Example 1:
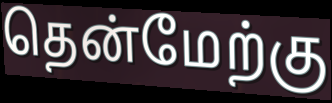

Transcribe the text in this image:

தென்மேற்கு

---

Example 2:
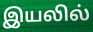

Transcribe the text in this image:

இயலில்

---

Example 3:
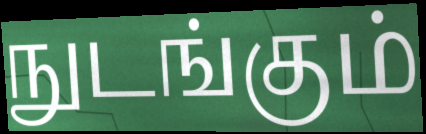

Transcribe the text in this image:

நுடங்கும்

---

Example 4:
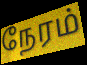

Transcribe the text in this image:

நேரம்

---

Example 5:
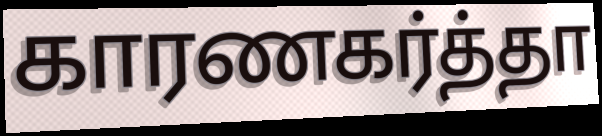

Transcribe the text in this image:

காரணகர்த்தா